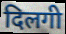
दिलगी